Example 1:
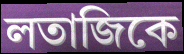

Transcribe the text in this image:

লতাজিকে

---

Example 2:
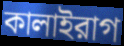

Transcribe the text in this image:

কালাইরাগ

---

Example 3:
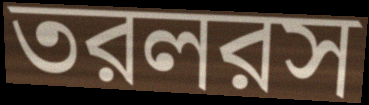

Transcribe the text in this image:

তরলরস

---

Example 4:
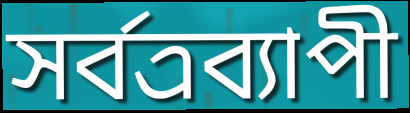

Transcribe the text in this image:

সর্বত্রব্যাপী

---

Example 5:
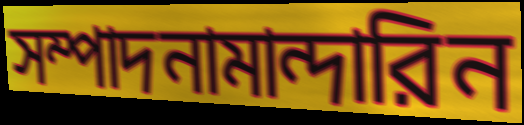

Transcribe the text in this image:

সম্পাদনামান্দারিন